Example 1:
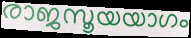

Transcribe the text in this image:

രാജസൂയയാഗം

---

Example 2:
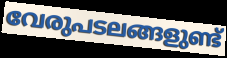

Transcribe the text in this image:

വേരുപടലങ്ങളുണ്ട്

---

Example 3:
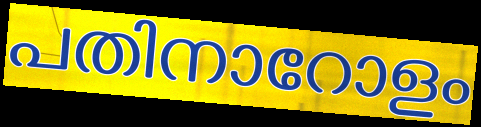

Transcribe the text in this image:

പതിനാറോളം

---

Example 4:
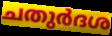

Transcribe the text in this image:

ചതുർദശ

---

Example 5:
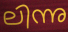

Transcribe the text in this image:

ലിന്നു